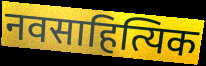
नवसाहित्यिक